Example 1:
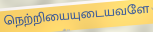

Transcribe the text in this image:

நெற்றியையுடையவளே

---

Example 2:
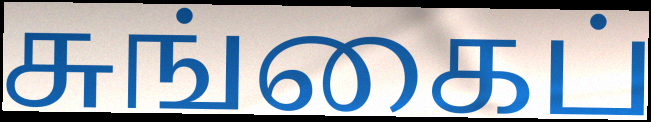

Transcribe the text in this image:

சுங்கைப்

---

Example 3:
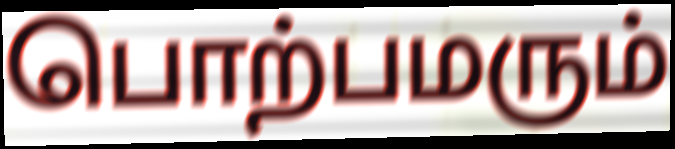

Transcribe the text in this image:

பொற்பமரும்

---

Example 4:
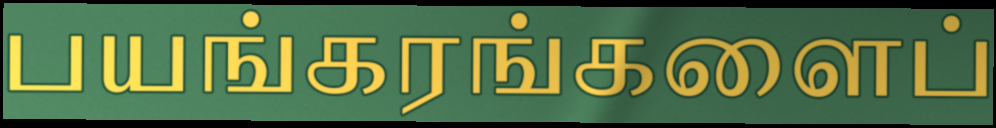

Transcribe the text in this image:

பயங்கரங்களைப்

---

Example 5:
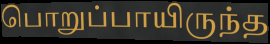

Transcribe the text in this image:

பொறுப்பாயிருந்த